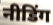
नीडिंग